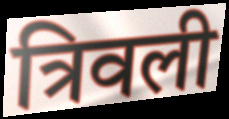
त्रिवली